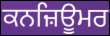
ਕਨਜ਼ਿਊਮਰ